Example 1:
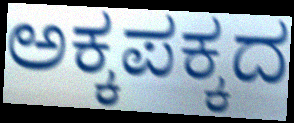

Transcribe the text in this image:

ಅಕ್ಕಪಕ್ಕದ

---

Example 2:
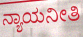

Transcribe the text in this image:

ನ್ಯಾಯನೀತಿ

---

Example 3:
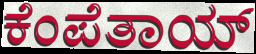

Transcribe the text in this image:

ಕೆಂಪೆತಾಯ್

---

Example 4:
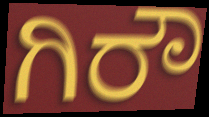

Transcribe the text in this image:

ಗಿರೌ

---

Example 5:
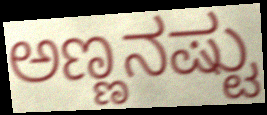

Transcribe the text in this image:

ಅಣ್ಣನಷ್ಟು